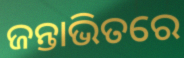
ଜନ୍ତାଭିତରେ